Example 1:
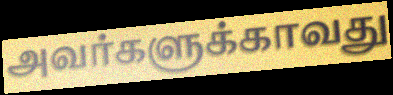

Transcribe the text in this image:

அவர்களுக்காவது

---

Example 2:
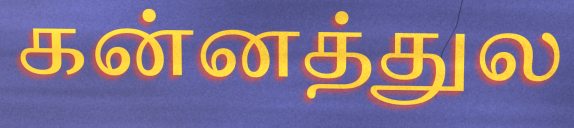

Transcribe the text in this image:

கன்னத்துல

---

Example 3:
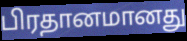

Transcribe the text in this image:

பிரதானமானது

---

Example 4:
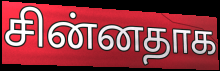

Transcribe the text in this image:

சின்னதாக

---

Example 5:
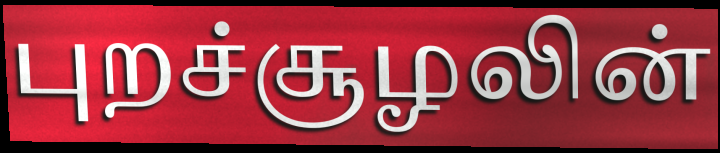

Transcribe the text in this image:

புறச்சூழலின்